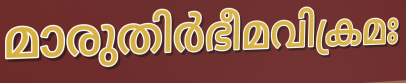
മാരുതിർഭീമവിക്രമഃ